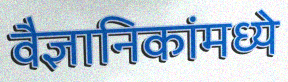
वैज्ञानिकांमध्ये